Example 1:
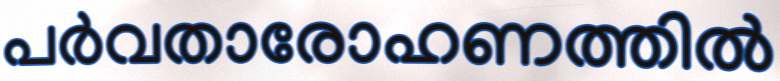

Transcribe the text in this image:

പർവതാരോഹണത്തിൽ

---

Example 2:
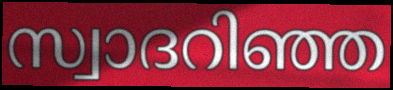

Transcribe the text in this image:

സ്വാദറിഞ്ഞ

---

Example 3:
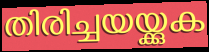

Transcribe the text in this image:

തിരിച്ചയയ്ക്കുക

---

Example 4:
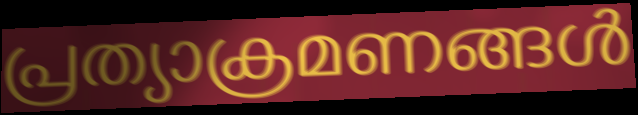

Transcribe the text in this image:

പ്രത്യാക്രമണങ്ങൾ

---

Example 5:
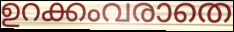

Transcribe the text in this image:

ഉറക്കംവരാതെ